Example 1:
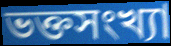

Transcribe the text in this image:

ভক্তসংখ্যা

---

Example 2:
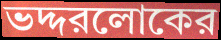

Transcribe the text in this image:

ভদ্দরলোকের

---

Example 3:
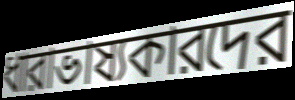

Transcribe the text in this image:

ধারাভাষ্যকারদের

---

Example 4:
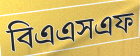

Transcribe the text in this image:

বিএএসএফ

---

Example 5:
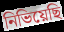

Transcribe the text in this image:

নিভিয়েছি